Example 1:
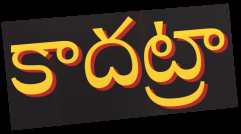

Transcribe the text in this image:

కాదట్రా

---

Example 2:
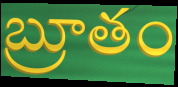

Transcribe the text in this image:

బ్రూతం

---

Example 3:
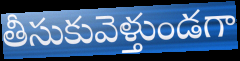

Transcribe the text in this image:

తీసుకువెళ్తుండగా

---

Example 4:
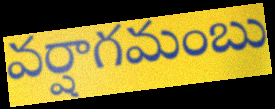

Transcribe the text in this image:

వర్షాగమంబు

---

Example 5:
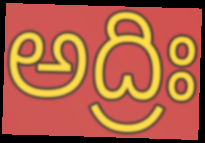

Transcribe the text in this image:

అద్రిః